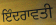
ਇੰਦਰਾਵਤੀ